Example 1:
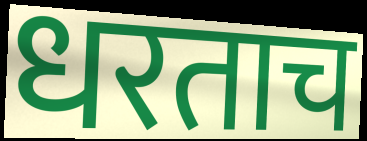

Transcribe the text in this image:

धरताच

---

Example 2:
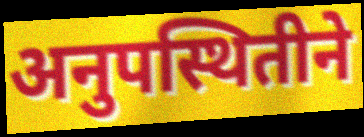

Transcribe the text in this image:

अनुपस्थितीने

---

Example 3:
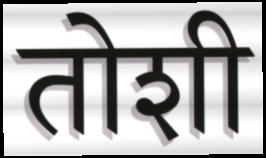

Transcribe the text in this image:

तोशी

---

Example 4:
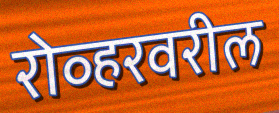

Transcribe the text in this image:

रोव्हरवरील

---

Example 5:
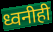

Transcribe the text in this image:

ध्वनीही